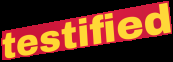
testified